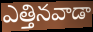
ఎత్తినవాడా